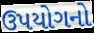
ઉપયોગનો